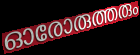
ഓരോരുത്തരും